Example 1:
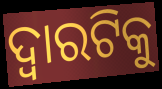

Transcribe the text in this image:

ଦ୍ଵାରଟିକୁ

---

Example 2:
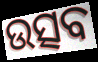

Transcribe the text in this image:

ଉତ୍ସବ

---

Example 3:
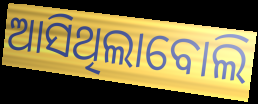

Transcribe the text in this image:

ଆସିଥିଲାବୋଲି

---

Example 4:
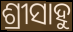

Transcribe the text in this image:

ଶ୍ରୀସାହୁ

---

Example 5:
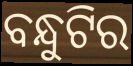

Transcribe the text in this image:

ବନ୍ଧୁଟିର